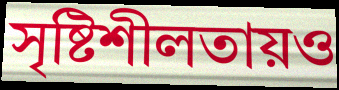
সৃষ্টিশীলতায়ও